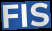
FIS